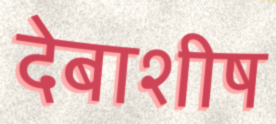
देबाशीष